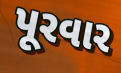
પૂરવાર